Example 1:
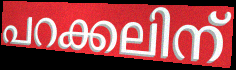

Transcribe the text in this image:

പറക്കലിന്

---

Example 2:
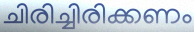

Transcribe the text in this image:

ചിരിച്ചിരിക്കണം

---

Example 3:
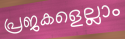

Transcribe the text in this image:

പ്രജകളെല്ലാം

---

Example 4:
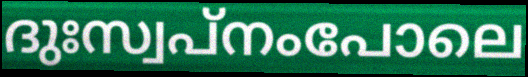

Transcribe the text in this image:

ദുഃസ്വപ്നംപോലെ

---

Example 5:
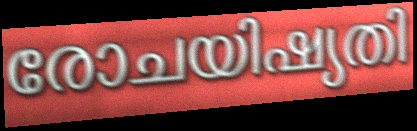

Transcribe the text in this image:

രോചയിഷ്യതി